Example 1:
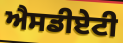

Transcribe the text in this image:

ਐਸਡੀਏਟੀ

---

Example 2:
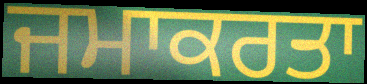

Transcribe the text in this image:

ਜਮਾਕਰਤਾ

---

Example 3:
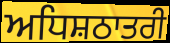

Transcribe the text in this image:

ਅਧਿਸ਼ਠਾਤਰੀ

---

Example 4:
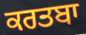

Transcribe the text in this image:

ਕਰਤਬਾ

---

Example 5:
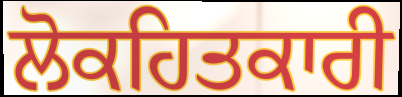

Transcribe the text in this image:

ਲੋਕਹਿਤਕਾਰੀ